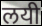
लयी